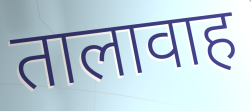
तालावाह